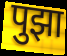
पुझा